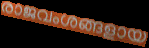
രാജവംശങ്ങളായ